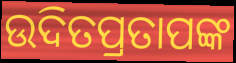
ଉଦିତପ୍ରତାପଙ୍କ